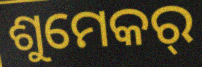
ଶୁମେକର୍